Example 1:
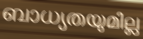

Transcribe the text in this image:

ബാധ്യതയുമില്ല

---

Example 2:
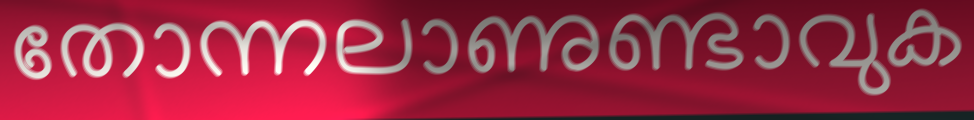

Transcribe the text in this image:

തോന്നലാണുണ്ടാവുക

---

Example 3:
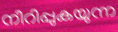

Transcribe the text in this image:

നീറിപ്പുകയുന്ന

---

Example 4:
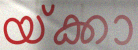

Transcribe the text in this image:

യ്‌ക്കാ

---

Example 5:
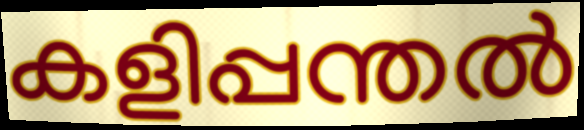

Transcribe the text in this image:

കളിപ്പന്തൽ